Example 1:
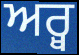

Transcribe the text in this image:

ਅਰ੍ਥ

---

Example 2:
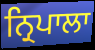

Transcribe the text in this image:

ਨ੍ਰਿਪਾਲਾ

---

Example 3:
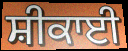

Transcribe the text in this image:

ਸ਼ੀਕਾਈ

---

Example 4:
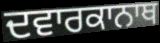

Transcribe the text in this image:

ਦਵਾਰਕਾਨਾਥ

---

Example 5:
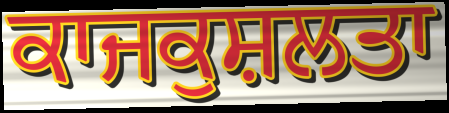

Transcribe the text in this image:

ਕਾਜਕੁਸ਼ਲਤਾ